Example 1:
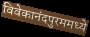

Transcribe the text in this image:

विवेकानंदपुरममध्ये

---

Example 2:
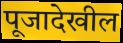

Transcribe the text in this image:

पूजादेखील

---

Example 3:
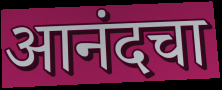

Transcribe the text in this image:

आनंदचा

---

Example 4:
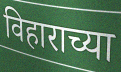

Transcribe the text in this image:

विहाराच्या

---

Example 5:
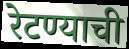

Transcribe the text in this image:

रेटण्याची